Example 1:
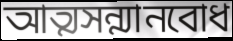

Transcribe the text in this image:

আত্মসন্মানবোধ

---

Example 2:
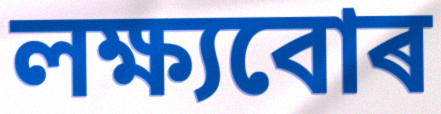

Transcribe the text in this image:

লক্ষ্যবোৰ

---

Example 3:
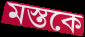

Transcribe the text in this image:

মস্তকে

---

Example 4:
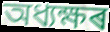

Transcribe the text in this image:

অধ্যক্ষৰ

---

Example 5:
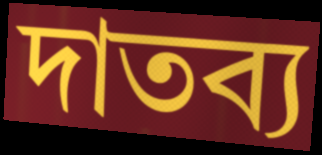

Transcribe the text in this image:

দাতব্য